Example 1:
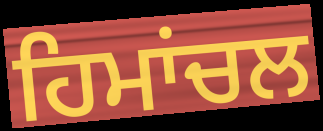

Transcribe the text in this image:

ਹਿਮਾਂਚਲ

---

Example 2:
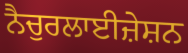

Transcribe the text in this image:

ਨੈਚੁਰਲਾਈਜ਼ੇਸ਼ਨ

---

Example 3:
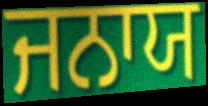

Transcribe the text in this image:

ਜਨਾਯ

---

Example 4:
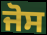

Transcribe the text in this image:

ਜੋਸ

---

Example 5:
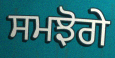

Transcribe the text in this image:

ਸਮਝੋਗੇ